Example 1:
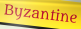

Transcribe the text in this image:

Byzantine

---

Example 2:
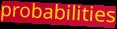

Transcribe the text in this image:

probabilities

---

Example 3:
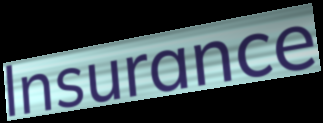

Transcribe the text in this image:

Insurance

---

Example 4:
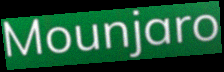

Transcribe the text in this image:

Mounjaro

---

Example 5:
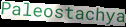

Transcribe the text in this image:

Paleostachya